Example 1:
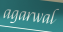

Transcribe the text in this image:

agarwal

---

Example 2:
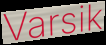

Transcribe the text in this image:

Varsik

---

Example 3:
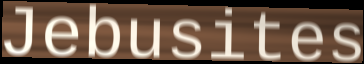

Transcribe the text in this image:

Jebusites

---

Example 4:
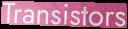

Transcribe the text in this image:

Transistors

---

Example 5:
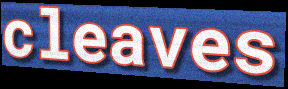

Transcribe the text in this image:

cleaves